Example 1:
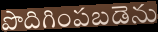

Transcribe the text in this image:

పొదిగింపబడెను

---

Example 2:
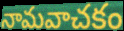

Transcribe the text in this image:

నామవాచకం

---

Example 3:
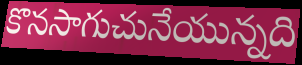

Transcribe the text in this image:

కొనసాగుచునేయున్నది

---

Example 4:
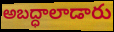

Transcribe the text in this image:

అబద్ధాలాడారు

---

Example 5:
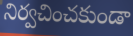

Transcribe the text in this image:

నిర్వచించకుండా